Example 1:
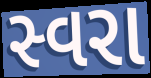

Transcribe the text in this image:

સ્વરા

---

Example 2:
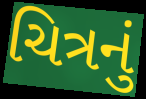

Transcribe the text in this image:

ચિત્રનું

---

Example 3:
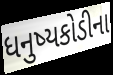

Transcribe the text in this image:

ધનુષ્યકોડીના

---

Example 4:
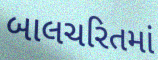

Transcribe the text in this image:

બાલચરિતમાં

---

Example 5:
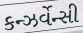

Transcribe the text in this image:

કન્ઝર્વેન્સી